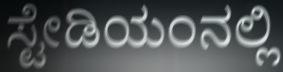
ಸ್ಟೇಡಿಯಂನಲ್ಲಿ